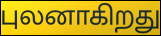
புலனாகிறது